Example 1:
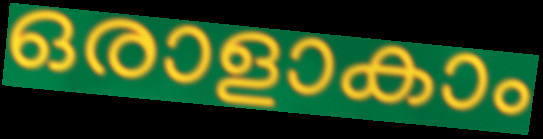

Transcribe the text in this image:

ഒരാളാകാം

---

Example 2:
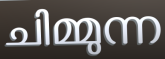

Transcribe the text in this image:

ചിമ്മുന്ന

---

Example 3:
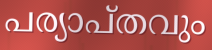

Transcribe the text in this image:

പര്യാപ്തവും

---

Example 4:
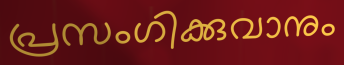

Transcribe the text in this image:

പ്രസംഗിക്കുവാനും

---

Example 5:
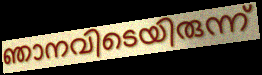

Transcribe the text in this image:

ഞാനവിടെയിരുന്ന്